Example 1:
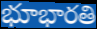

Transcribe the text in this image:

భూభారతి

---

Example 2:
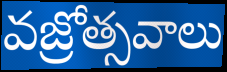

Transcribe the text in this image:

వజ్రోత్సవాలు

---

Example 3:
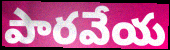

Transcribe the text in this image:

పారవేయ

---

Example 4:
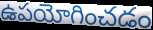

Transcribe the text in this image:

ఉపయోగించడం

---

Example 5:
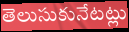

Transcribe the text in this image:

తెలుసుకునేటట్లు